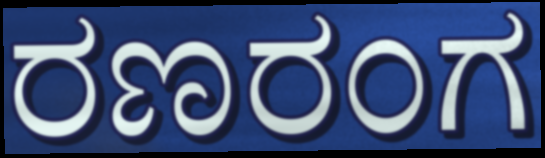
ರಣರಂಗ